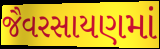
જૈવરસાયણમાં